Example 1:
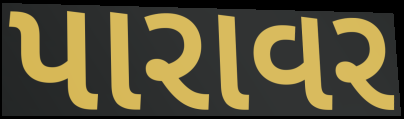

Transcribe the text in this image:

પારાવર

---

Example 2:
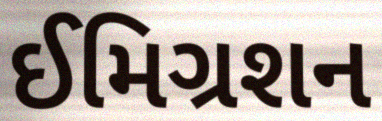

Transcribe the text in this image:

ઈમિગ્રશન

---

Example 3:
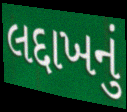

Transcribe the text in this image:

લદ્દાખનું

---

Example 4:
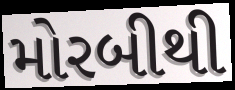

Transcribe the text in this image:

મોરબીથી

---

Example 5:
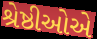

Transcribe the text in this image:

શ્રેષ્ઠીઓએ